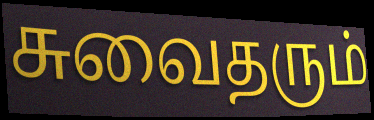
சுவைதரும்